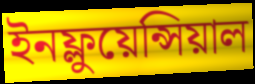
ইনফ্লুয়েন্সিয়াল